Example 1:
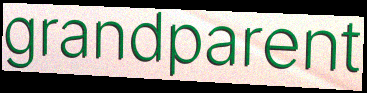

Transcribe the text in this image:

grandparent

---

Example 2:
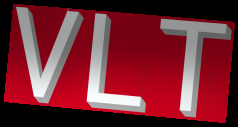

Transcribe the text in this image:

VLT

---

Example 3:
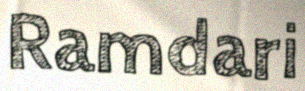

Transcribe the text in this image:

Ramdari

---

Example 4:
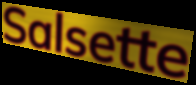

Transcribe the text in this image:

Salsette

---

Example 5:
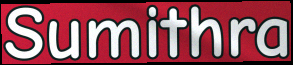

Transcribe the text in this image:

Sumithra